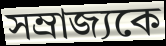
সম্রাজ্যকে